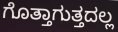
ಗೊತ್ತಾಗುತ್ತದಲ್ಲ